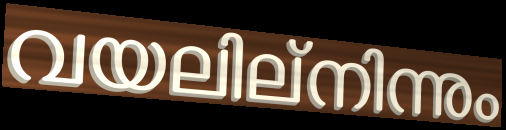
വയലില്നിന്നും